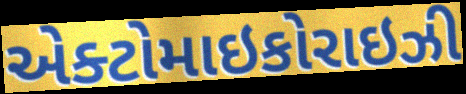
એક્ટોમાઇકોરાઇઝી